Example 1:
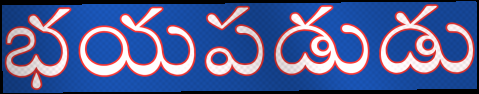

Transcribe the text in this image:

భయపడుడు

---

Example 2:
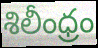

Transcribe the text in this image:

శిలీంధ్రం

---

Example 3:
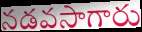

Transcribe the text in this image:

నడవసాగారు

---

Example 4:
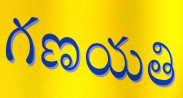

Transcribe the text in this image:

గణయతి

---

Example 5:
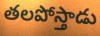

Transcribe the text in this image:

తలపోస్తాడు